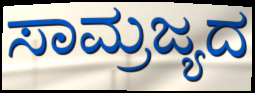
ಸಾಮ್ರಜ್ಯದ